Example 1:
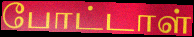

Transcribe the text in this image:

போட்டாள்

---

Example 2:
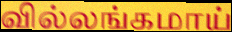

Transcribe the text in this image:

வில்லங்கமாய்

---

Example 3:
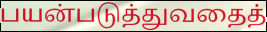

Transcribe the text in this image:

பயன்படுத்துவதைத்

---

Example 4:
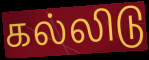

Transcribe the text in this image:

கல்லிடு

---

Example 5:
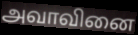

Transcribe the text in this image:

அவாவினை